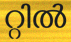
റ്റിൽ